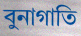
বুনাগাতি